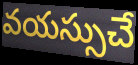
వయస్సుచే